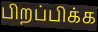
பிறப்பிக்க